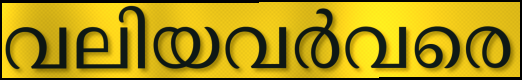
വലിയവർവരെ